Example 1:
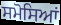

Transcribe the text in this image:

ਸਮੋਸਿਆਂ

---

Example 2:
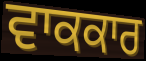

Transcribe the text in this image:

ਵਾਕਕਾਰ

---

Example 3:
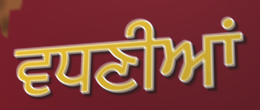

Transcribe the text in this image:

ਵਧਣੀਆਂ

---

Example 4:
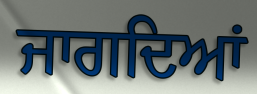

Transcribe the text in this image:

ਜਾਗਦਿਆਂ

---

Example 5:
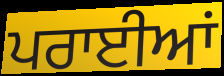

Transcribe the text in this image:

ਪਰਾਈਆਂ